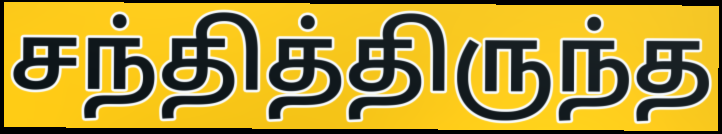
சந்தித்திருந்த